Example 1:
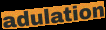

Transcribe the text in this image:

adulation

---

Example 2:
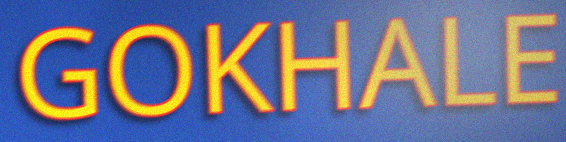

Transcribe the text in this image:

GOKHALE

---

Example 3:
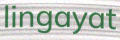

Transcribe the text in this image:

lingayat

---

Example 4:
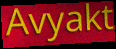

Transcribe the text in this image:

Avyakt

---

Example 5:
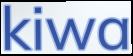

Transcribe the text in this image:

kiwa